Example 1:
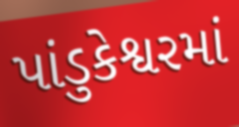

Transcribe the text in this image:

પાંડુકેશ્વરમાં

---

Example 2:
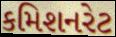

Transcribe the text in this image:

કમિશનરેટ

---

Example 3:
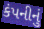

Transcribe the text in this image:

કંપનીનું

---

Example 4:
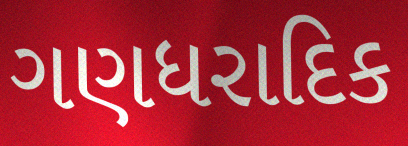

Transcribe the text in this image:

ગણધરાદિક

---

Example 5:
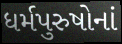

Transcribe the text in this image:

ધર્મપુરુષોનાં